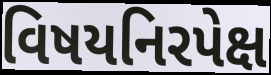
વિષયનિરપેક્ષ